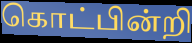
கொட்பின்றி